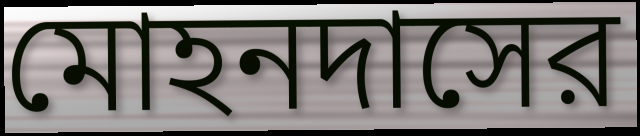
মোহনদাসের